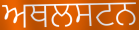
ਅਥਲਸਟਨ